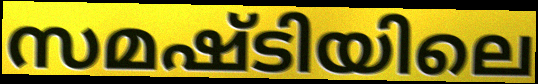
സമഷ്ടിയിലെ